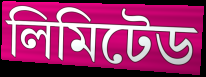
লিমিটেড